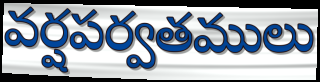
వర్షపర్వతములు